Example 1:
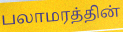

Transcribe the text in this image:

பலாமரத்தின்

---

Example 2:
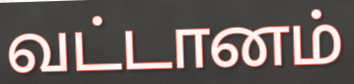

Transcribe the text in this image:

வட்டானம்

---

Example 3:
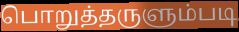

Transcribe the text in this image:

பொறுத்தருளும்படி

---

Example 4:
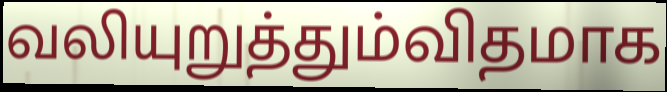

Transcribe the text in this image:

வலியுறுத்தும்விதமாக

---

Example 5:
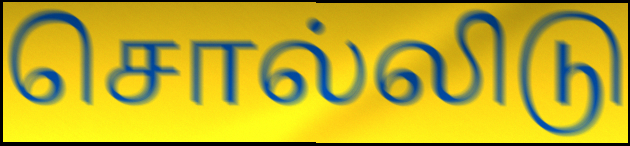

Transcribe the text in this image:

சொல்லிடு